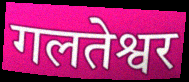
गलतेश्वर